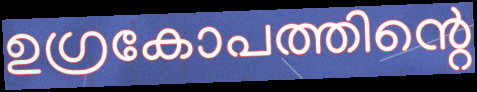
ഉഗ്രകോപത്തിന്റെ